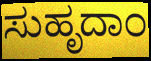
ಸುಹೃದಾಂ